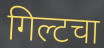
गिल्टचा